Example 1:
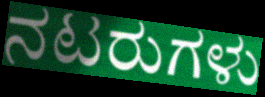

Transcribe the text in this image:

ನಟರುಗಳು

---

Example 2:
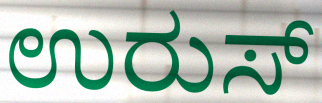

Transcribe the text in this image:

ಉರುಸ್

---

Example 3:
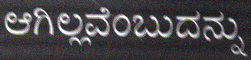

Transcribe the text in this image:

ಆಗಿಲ್ಲವೆಂಬುದನ್ನು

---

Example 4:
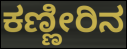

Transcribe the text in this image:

ಕಣ್ಣೀರಿನ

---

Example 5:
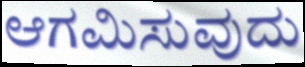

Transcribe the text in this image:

ಆಗಮಿಸುವುದು